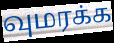
வுமரக்க